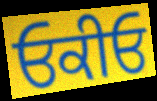
ਓਕੀਓ